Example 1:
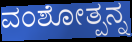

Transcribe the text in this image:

ವಂಶೋತ್ಪನ್ನ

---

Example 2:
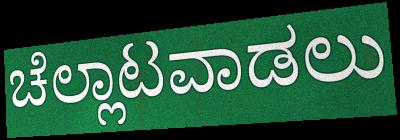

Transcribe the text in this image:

ಚೆಲ್ಲಾಟವಾಡಲು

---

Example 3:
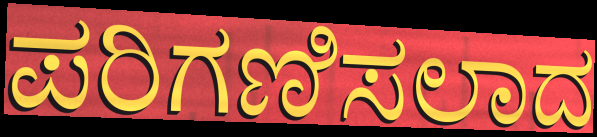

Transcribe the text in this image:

ಪರಿಗಣಿಸಲಾದ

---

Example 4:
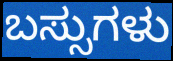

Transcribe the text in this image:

ಬಸ್ಸುಗಳು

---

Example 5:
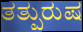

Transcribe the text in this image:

ತತ್ಪುರುಷ